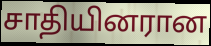
சாதியினரான